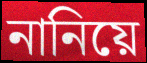
নানিয়ে